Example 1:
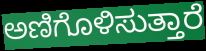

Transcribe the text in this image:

ಅಣಿಗೊಳಿಸುತ್ತಾರೆ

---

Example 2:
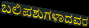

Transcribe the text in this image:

ಬಲಿಪಶುಗಳಾದವರ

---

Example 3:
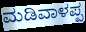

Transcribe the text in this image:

ಮಡಿವಾಳಪ್ಪ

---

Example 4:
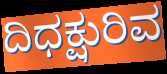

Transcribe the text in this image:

ದಿಧಕ್ಷುರಿವ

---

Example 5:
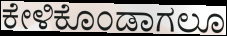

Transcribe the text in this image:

ಕೇಳಿಕೊಂಡಾಗಲೂ